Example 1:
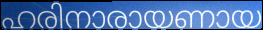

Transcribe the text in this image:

ഹരിനാരായണായ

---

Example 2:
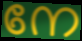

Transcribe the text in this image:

നേ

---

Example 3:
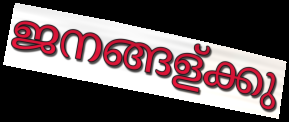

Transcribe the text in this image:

ജനങ്ങള്ക്കു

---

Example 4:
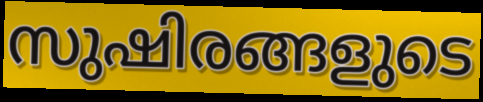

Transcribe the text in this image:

സുഷിരങ്ങളുടെ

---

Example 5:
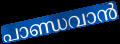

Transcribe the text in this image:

പാണ്ഡവാൻ